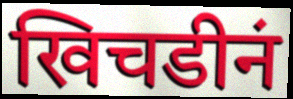
खिचडीनं